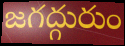
జగద్గురుం